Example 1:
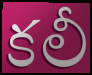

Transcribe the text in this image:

కలీ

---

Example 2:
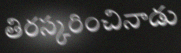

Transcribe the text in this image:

తిరస్కరించినాడు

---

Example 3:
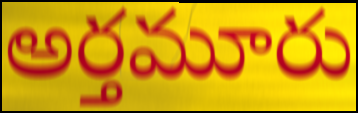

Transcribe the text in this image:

అర్తమూరు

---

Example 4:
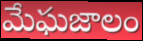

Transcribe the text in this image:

మేఘజాలం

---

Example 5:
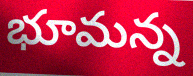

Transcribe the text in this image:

భూమన్న